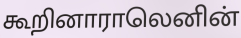
கூறினாராலெனின்